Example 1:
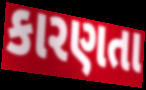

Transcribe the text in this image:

કારણતા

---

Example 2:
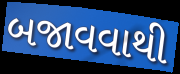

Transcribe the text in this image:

બજાવવાથી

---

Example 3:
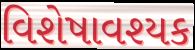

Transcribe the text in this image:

વિશેષાવશ્યક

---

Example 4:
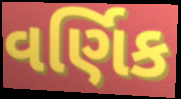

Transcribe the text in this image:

વર્ણિક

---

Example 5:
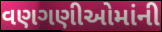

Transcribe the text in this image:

વણગણીઓમાંની